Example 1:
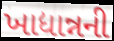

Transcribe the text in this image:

ખાદ્યાન્નની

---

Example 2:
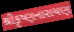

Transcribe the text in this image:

શ્રીકૃષ્ણનારાયણ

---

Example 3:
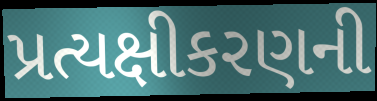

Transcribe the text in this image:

પ્રત્યક્ષીકરણની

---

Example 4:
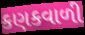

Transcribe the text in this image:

કણકવાળી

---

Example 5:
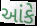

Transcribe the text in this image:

આંકે